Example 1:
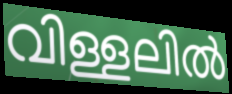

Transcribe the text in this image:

വിള്ളലിൽ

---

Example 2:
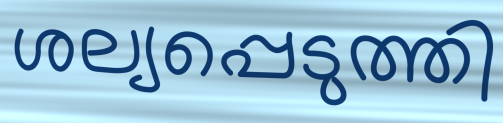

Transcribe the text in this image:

ശല്യപ്പെടുത്തി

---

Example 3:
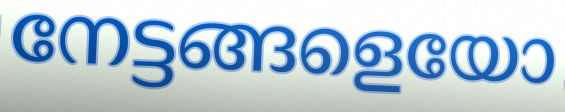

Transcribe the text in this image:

നേട്ടങ്ങളെയോ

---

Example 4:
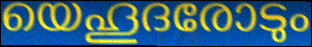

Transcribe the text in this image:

യെഹൂദരോടും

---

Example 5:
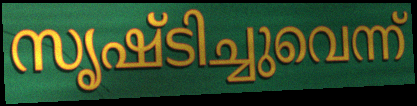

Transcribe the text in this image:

സൃഷ്ടിച്ചുവെന്ന്